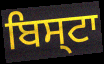
ਬਿਸ੍ਟਾ